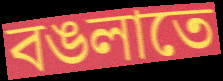
বঙলাতে